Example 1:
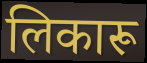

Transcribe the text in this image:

लिकारू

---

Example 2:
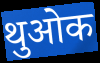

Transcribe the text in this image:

थुओक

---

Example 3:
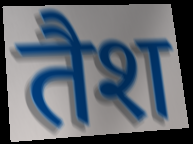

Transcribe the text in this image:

तैश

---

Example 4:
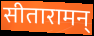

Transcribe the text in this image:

सीतारामन्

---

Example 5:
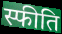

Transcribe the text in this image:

स्फीति